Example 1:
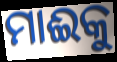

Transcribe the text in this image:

ମାଈକୁ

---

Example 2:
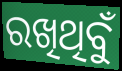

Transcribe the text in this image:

ରଖିଥିବୁଁ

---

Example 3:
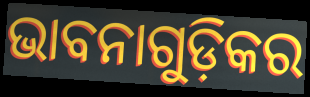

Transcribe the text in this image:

ଭାବନାଗୁଡ଼ିକର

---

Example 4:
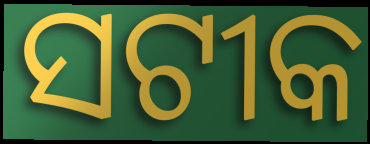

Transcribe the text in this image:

ସଟୀକ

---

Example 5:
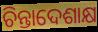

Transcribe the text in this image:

ଚିନ୍ତାଦେଶାକ୍ଷ